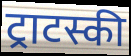
ट्राटस्की